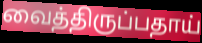
வைத்திருப்பதாய்